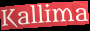
Kallima